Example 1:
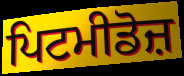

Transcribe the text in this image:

ਪਿਟਮੀਡੋਜ਼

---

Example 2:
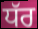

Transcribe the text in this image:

ਧੱਰ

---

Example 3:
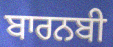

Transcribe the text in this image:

ਬਾਰਨਬੀ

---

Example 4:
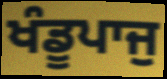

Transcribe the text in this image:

ਖੰਡੂਪਾਜੁ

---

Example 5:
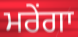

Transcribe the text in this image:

ਮਰੇਂਗਾ